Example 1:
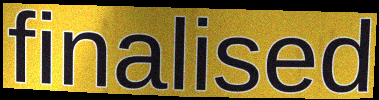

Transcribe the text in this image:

finalised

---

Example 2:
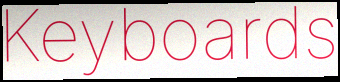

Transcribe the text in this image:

Keyboards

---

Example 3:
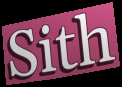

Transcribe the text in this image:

Sith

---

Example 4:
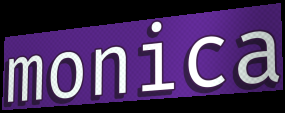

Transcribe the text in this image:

monica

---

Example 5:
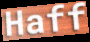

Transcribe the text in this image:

Haff